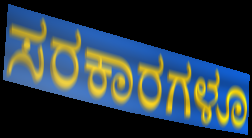
ಸರಕಾರಗಳೂ